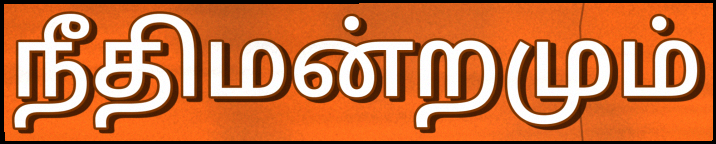
நீதிமன்றமும்